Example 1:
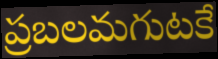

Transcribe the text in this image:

ప్రబలమగుటకే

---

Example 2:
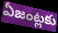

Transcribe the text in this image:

ఏజంట్లకు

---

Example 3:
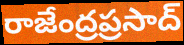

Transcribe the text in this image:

రాజేంద్రప్రసాద్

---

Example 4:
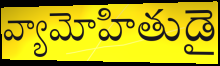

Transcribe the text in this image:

వ్యామోహితుడై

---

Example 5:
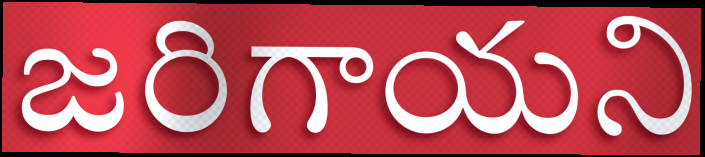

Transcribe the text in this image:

జరిగాయని